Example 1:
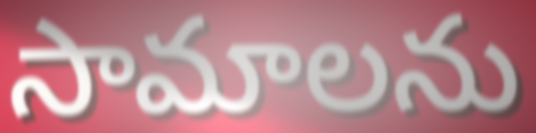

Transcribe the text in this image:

సామాలను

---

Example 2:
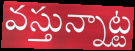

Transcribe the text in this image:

వస్తున్నాట్ట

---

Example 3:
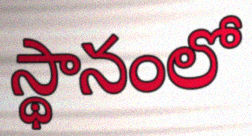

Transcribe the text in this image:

స్థానంలో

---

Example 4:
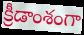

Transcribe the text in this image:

క్రీడాంశంగా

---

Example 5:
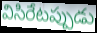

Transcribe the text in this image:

విసిరేటప్పుడు